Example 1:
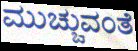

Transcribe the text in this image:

ಮುಚ್ಚುವಂತೆ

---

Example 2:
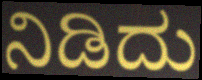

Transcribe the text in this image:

ನಿಡಿದು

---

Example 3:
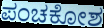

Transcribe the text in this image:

ಪಂಚಕೋಶ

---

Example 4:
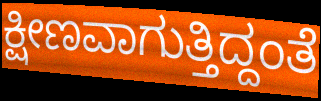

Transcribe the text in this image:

ಕ್ಷೀಣವಾಗುತ್ತಿದ್ದಂತೆ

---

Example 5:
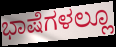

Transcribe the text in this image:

ಭಾಷೆಗಳಲ್ಲೂ